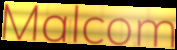
Malcom